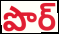
పొర్